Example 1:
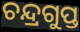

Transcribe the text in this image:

ଚନ୍ଦ୍ରଗୁପ୍ତ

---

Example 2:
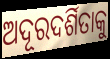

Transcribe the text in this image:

ଅଦୂରଦର୍ଶିତାକୁ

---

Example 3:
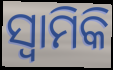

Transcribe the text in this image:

ସ୍ୱାମିକି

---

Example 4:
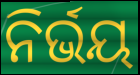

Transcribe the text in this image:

ନିର୍ଭୟ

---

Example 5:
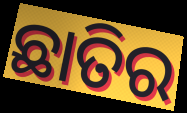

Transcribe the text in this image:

ଛାତିର